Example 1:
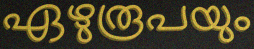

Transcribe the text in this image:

ഏഴുരൂപയും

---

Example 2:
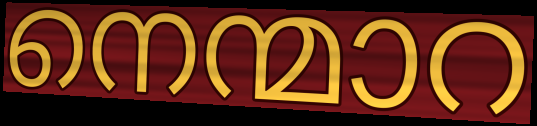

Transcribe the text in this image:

നെന്മാറ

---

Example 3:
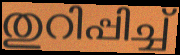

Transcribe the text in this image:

തുറിപ്പിച്ച്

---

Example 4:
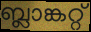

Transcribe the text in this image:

ബ്ലാങ്കറ്റ്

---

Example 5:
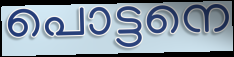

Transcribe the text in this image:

പൊട്ടനെ